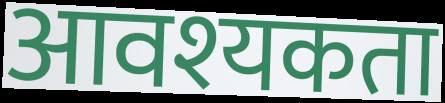
आवश्‍यकता